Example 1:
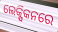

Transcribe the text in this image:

ଲେକ୍ସିକନରେ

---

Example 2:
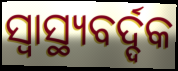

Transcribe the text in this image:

ସ୍ଵାସ୍ଥ୍ୟବର୍ଦ୍ଦକ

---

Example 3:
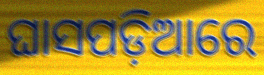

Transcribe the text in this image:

ଘାସପଡ଼ିଆରେ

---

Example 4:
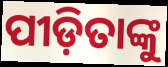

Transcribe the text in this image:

ପୀଡ଼ିତାଙ୍କୁ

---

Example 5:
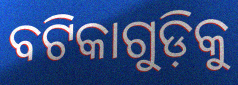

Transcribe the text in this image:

ବଟିକାଗୁଡ଼ିକୁ